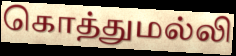
கொத்துமல்லி